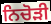
ਨਿਚੋੜੀ